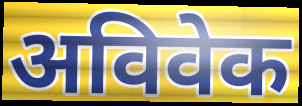
अविवेक